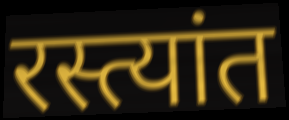
रस्त्यांत